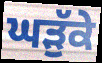
ਘੜੁੱਕੇ